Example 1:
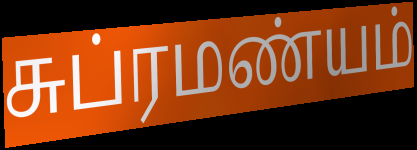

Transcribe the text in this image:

சுப்ரமண்யம்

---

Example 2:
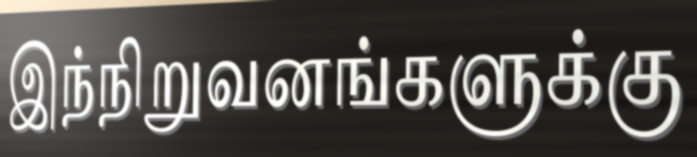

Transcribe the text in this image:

இந்நிறுவனங்களுக்கு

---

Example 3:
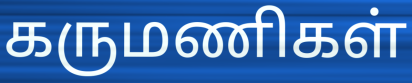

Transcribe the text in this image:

கருமணிகள்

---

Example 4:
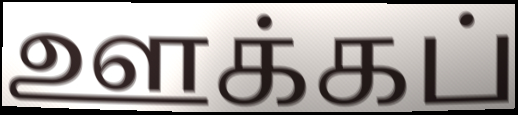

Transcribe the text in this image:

ஊக்கப்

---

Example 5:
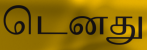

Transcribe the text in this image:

டெனது